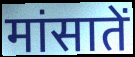
मांसातें